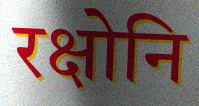
रक्षोनि